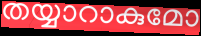
തയ്യാറാകുമോ